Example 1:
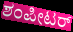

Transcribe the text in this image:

ಶಂಪೀಟರ್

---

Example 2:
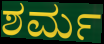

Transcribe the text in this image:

ಶರ್ಮ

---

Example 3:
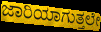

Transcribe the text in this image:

ಜಾರಿಯಾಗುತ್ತಲೇ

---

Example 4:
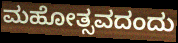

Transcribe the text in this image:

ಮಹೋತ್ಸವದಂದು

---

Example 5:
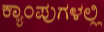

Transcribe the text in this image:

ಕ್ಯಾಂಪುಗಳಲ್ಲಿ